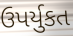
ઉપર્યુકત